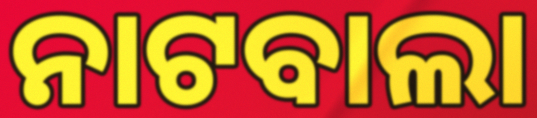
ନାଟବାଲା